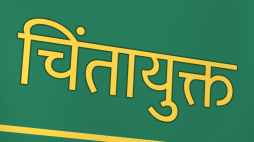
चिंतायुक्त